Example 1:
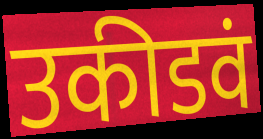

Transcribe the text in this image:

उकीडवं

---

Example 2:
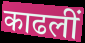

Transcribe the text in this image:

काढलीं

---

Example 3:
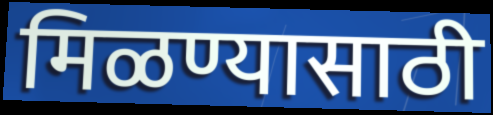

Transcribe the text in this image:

मिळण्यासाठी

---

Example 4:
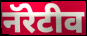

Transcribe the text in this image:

नॅरेटीव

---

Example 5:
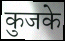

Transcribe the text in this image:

कुजके